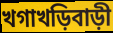
খগাখড়িবাড়ী